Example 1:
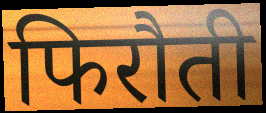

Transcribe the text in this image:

फिरौती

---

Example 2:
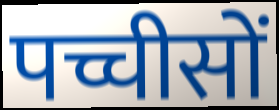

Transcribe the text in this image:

पच्चीसों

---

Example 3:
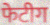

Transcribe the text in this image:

फेटीग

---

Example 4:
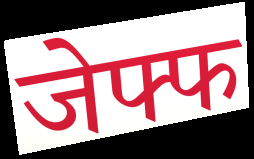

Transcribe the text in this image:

जेफ्फ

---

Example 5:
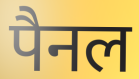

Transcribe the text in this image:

पैनल